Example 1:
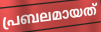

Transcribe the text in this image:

പ്രബലമായത്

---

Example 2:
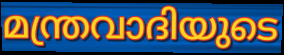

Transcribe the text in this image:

മന്ത്രവാദിയുടെ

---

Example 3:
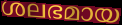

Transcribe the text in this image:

ശലഭമായ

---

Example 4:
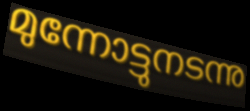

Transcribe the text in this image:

മുന്നോട്ടുനടന്നു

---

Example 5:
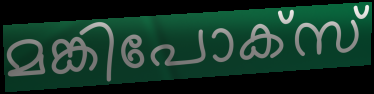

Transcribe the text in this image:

മങ്കിപോക്സ്